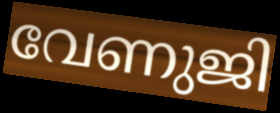
വേണുജി